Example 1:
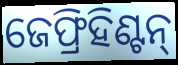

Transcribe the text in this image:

ଜେଫ୍ରିହିଣ୍ଟନ୍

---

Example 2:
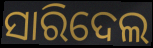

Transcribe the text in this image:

ସାରିଦେଲ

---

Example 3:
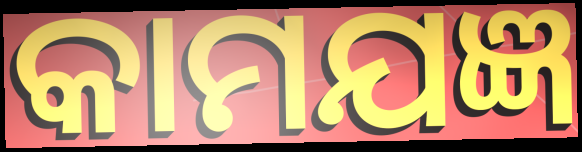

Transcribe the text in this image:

କାମଯଜ୍ଞ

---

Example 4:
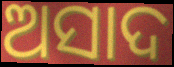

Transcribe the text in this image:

ଅସାଦ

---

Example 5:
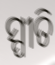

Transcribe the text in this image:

ସ୍ପୀତି